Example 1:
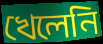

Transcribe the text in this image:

খেলেনি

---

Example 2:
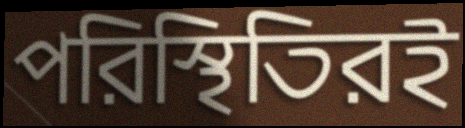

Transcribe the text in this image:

পরিস্থিতিরই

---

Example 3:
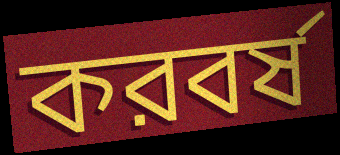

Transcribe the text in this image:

করবর্ষ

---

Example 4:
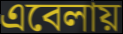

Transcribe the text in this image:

এবেলায়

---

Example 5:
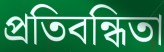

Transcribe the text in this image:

প্রতিবন্ধিতা